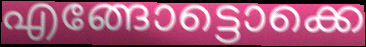
എങ്ങോട്ടൊക്കെ